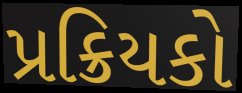
પ્રક્રિયકો